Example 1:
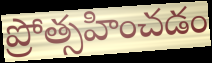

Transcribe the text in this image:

ప్రోత్సహించడం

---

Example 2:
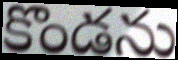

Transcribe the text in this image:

కొండను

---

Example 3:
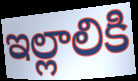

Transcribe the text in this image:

ఇల్లాలికి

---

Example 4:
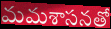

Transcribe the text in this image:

మమశాసనతో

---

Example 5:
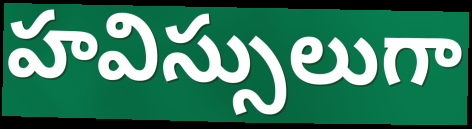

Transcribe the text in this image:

హవిస్సులుగా